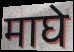
माघे